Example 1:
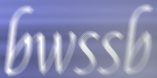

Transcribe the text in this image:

bwssb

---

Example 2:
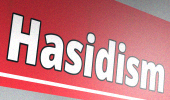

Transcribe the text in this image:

Hasidism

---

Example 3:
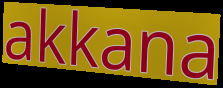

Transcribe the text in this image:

akkana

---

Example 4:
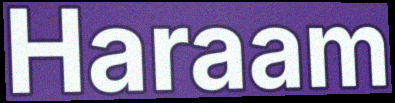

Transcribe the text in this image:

Haraam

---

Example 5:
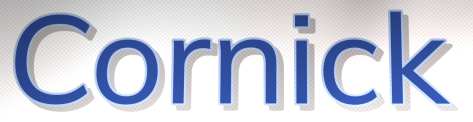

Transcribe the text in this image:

Cornick